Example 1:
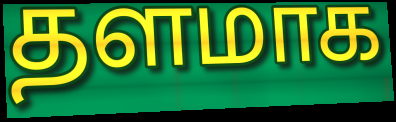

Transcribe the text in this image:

தளமாக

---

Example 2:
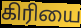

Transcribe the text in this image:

கிரியை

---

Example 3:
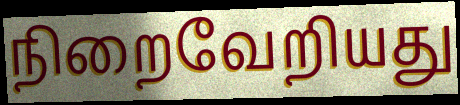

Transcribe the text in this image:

நிறைவேறியது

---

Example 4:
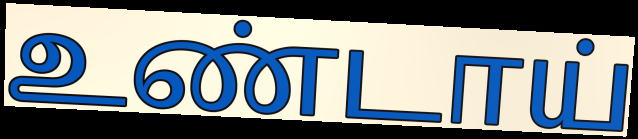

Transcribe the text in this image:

உண்டாய்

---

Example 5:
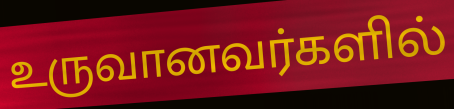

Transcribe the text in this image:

உருவானவர்களில்